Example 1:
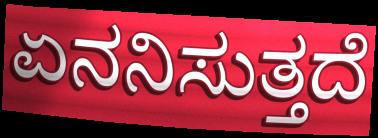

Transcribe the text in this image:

ಏನನಿಸುತ್ತದೆ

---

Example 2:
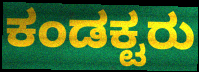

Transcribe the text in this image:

ಕಂಡಕ್ಟರು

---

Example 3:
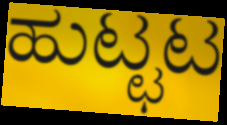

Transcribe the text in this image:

ಹುಟ್ಟಟ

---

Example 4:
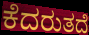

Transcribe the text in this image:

ಕೆದರುತದೆ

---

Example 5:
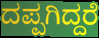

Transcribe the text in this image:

ದಪ್ಪಗಿದ್ದರೆ